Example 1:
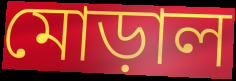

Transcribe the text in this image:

মোড়াল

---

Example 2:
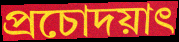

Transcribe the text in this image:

প্রচোদয়াৎ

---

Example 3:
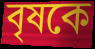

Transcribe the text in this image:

বৃষকে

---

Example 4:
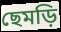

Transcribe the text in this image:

ছেমড়ি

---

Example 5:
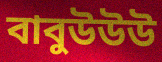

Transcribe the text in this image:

বাবুউউউ